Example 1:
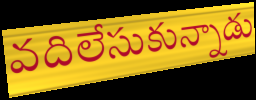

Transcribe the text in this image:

వదిలేసుకున్నాడు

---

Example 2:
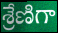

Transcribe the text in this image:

శ్రేణిగా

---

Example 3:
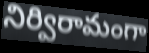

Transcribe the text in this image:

నిర్విరామంగా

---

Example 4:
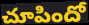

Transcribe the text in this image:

చూపిందో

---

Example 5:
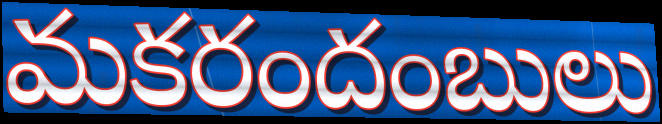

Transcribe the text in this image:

మకరందంబులు